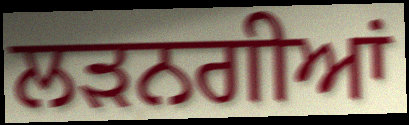
ਲੜਨਗੀਆਂ